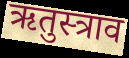
ऋतुस्त्राव